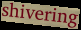
shivering